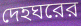
দেহঘরের